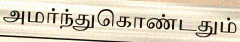
அமர்ந்துகொண்டதும்